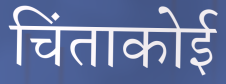
चिंताकोई